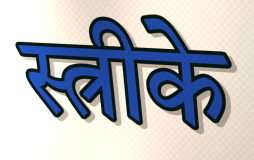
स्त्रीके